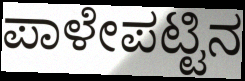
ಪಾಳೇಪಟ್ಟಿನ